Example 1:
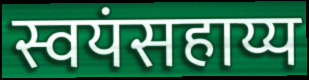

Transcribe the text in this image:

स्वयंसहाय्य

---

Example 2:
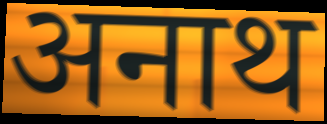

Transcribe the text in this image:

अनाथ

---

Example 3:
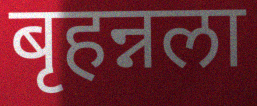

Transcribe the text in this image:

बृहन्नला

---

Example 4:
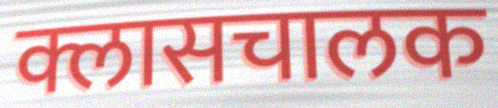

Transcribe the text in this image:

क्‍लासचालक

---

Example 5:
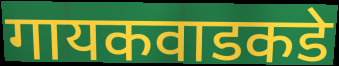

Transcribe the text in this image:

गायकवाडकडे